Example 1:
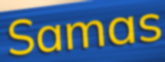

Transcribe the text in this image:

Samas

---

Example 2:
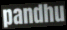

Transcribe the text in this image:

pandhu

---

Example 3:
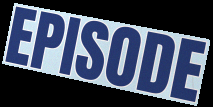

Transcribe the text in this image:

EPISODE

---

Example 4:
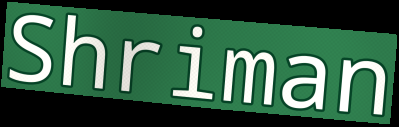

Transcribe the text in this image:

Shriman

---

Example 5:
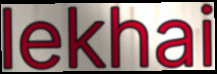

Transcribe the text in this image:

lekhai